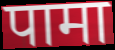
पामा